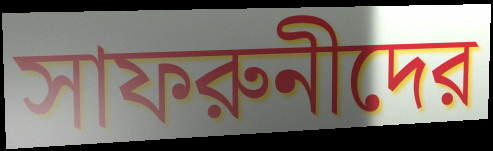
সাফরুনীদের